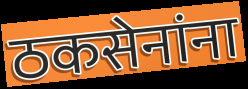
ठकसेनांना